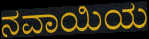
ನವಾಯಿಯ